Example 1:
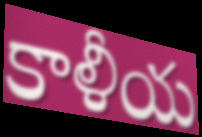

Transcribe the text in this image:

కాళీయ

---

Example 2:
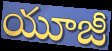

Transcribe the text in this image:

యూజీ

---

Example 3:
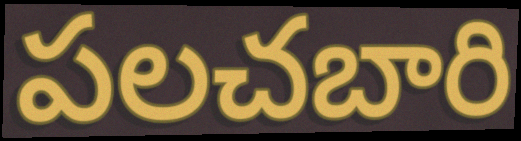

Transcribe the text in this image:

పలచబారి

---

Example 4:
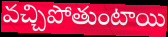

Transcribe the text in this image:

వచ్చిపోతుంటాయి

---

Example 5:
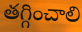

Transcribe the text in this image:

తగ్గించాలి